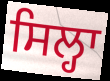
ਸਿਲ੍ਹਾ